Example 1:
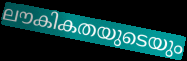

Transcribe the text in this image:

ലൗകികതയുടെയും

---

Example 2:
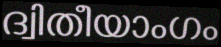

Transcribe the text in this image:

ദ്വിതീയാംഗം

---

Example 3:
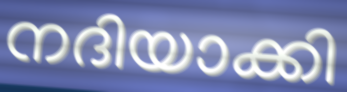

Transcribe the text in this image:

നദിയാക്കി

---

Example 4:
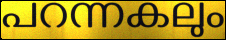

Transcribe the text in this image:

പറന്നകലും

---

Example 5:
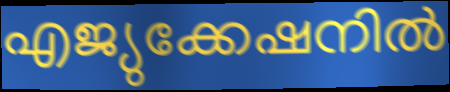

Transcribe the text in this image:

എജ്യുക്കേഷനിൽ